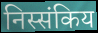
निस्संकिय